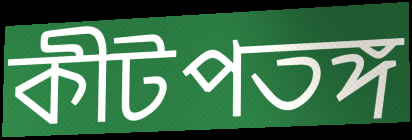
কীটপতঙ্গ